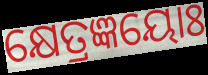
କ୍ଷେତ୍ରଜ୍ଞୟୋଃ